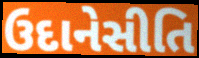
ઉદાનેસીતિ